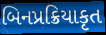
બિનપ્રક્રિયાકૃત